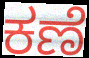
ಕಣೆ